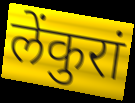
लेंकुरां